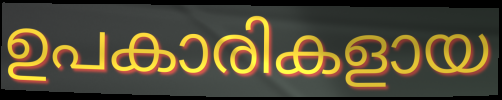
ഉപകാരികളായ